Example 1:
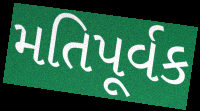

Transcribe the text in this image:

મતિપૂર્વક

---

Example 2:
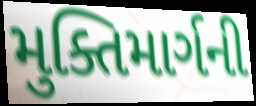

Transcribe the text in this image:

મુક્તિમાર્ગની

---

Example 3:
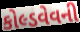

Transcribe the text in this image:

કોલ્ડવેવની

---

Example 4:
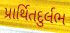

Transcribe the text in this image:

પ્રાર્થિતદુર્લભ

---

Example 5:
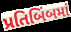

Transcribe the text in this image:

પ્રતિબિંબમાં